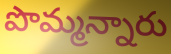
పొమ్మన్నారు